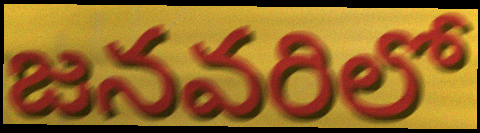
జనవరిలో